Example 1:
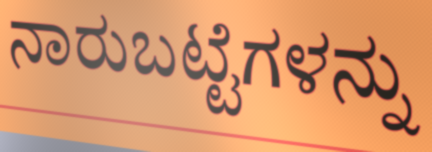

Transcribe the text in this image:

ನಾರುಬಟ್ಟೆಗಳನ್ನು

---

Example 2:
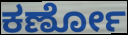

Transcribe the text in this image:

ಕರ್ಣೋ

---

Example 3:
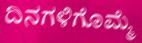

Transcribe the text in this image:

ದಿನಗಳಿಗೊಮ್ಮೆ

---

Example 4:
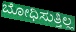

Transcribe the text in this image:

ಬೋಧಿಸುತ್ತಿಲ್ಲ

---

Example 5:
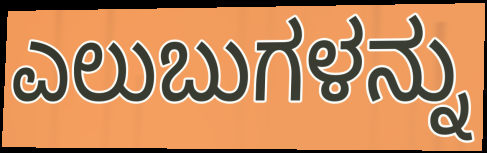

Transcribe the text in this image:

ಎಲುಬುಗಳನ್ನು